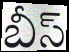
బీస్